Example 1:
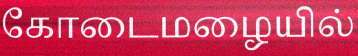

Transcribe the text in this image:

கோடைமழையில்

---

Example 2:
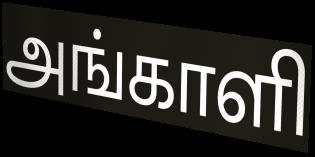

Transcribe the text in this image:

அங்காளி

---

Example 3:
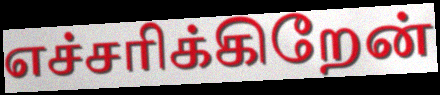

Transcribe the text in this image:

எச்சரிக்கிறேன்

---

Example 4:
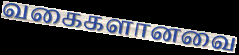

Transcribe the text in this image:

வகைகளானவை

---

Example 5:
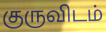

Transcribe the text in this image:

குருவிடம்